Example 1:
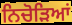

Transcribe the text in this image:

ਨਿਚੋੜਿਆਂ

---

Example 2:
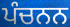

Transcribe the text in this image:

ਪੰਚਨਨ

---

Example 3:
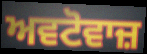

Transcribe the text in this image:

ਅਵਟੋਵਾਜ਼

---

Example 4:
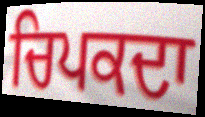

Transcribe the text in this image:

ਚਿਪਕਦਾ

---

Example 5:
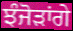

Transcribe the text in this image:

ਝੰਜੋੜਾਂਗੇ